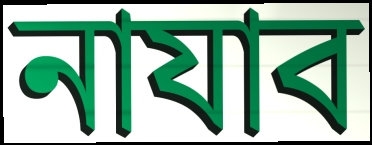
নাযাব